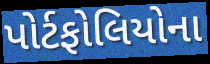
પોર્ટફોલિયોના